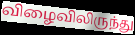
விழைவிலிருந்து